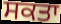
ਸਕਤਾ